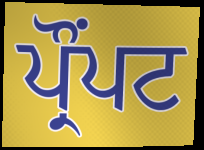
ਪ੍ਰੌੰਪਟ